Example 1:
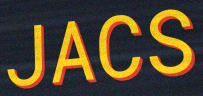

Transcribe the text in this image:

JACS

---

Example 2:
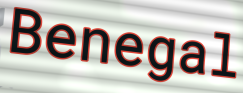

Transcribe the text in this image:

Benegal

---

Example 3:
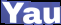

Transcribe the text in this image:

Yau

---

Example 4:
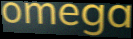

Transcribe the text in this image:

omega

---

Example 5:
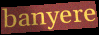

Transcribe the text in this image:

banyere